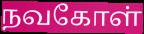
நவகோள்